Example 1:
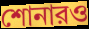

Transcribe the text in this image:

শোনারও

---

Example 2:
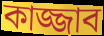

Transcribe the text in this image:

কাজ্জাব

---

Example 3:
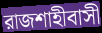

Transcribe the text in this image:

রাজশাহীবাসী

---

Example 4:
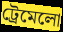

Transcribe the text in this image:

ট্রেমেলো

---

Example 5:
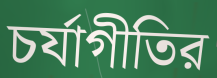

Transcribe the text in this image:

চর্যাগীতির